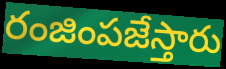
రంజింపజేస్తారు